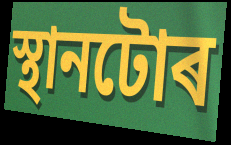
স্থানটোৰ